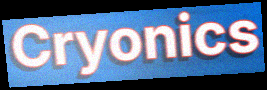
Cryonics